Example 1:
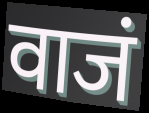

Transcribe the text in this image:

वाजं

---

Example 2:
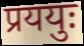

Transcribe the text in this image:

प्रययुः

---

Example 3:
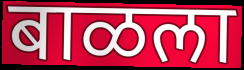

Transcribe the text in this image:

बाळला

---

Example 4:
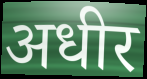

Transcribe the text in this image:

अधीर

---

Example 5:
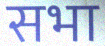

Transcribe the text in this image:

सभा